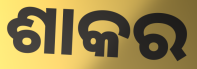
ଶାକର